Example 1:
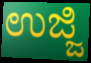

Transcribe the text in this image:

ಉಜ್ಜಿ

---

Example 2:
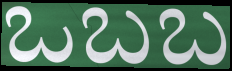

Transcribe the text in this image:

ಒಬಬ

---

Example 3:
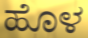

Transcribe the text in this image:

ಹೊಳ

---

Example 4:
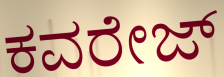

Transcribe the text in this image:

ಕವರೇಜ್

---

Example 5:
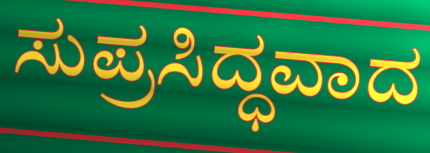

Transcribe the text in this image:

ಸುಪ್ರಸಿದ್ಧವಾದ